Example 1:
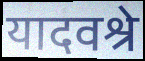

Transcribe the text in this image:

यादवश्रे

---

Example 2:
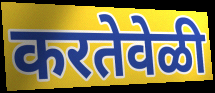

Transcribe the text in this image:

करतेवेळी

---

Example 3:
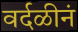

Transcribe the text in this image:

वर्दळीनं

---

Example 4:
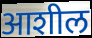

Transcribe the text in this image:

आशील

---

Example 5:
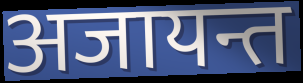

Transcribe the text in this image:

अजायन्त